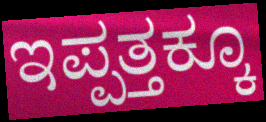
ಇಪ್ಪತ್ತಕ್ಕೂ